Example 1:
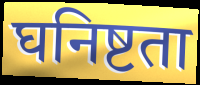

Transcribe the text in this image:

घनिष्टता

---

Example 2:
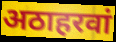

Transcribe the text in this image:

अठाहरवां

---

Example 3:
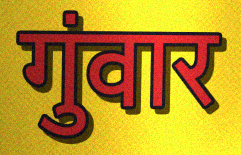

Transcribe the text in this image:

गुंवार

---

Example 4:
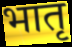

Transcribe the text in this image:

भातृ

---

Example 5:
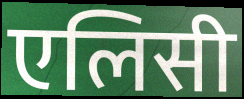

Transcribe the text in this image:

एलिसी